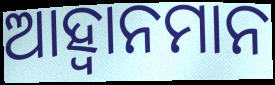
ଆହ୍ୱାନମାନ